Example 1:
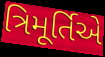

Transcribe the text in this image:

ત્રિમૂર્તિએ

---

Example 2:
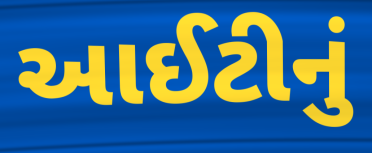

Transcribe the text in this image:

આઈટીનું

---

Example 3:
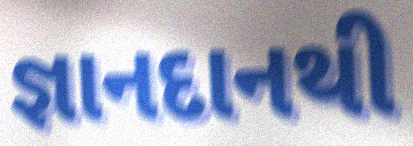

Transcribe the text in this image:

જ્ઞાનદાનથી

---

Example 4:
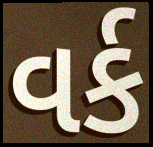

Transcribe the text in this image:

વર્ક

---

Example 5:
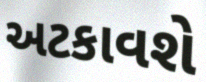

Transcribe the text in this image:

અટકાવશે